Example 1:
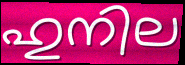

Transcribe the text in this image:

ഹുനില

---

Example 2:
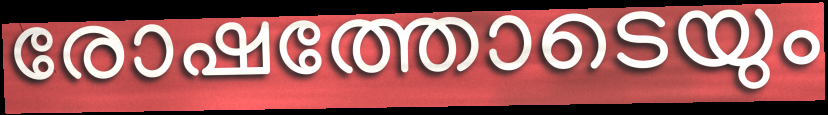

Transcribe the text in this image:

രോഷത്തോടെയും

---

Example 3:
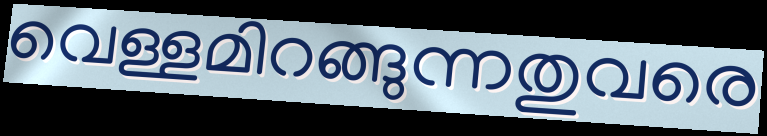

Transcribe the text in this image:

വെള്ളമിറങ്ങുന്നതുവരെ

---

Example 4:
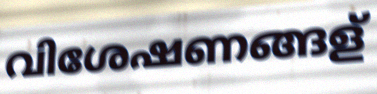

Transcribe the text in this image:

വിശേഷണങ്ങള്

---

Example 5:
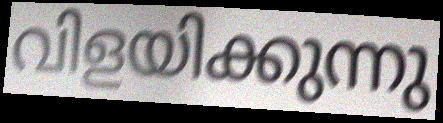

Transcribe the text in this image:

വിളയിക്കുന്നു